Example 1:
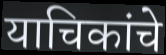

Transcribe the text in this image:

याचिकांचे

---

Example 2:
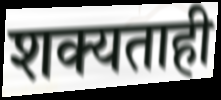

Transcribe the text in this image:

शक्‍यताही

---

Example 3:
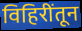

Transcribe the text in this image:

विहिरींतून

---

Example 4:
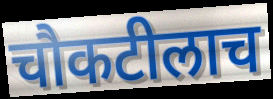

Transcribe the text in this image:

चौकटीलाच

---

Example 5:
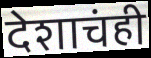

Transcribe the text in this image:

देशाचंही